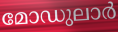
മോഡുലാർ